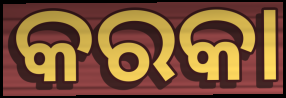
କରକା